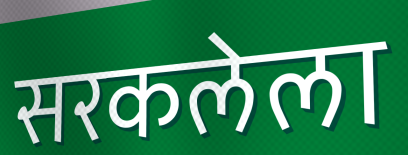
सरकलेला